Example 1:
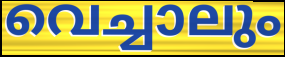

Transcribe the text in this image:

വെച്ചാലും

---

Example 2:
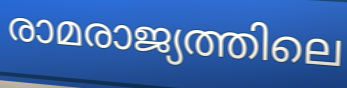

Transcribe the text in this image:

രാമരാജ്യത്തിലെ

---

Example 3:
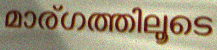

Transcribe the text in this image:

മാര്ഗത്തിലൂടെ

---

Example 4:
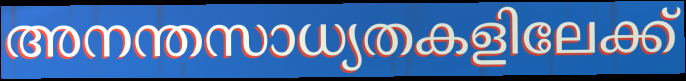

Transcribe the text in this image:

അനന്തസാധ്യതകളിലേക്ക്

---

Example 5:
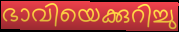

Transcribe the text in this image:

ഭാവിയെക്കുറിച്ചു